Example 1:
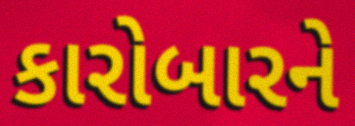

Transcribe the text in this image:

કારોબારને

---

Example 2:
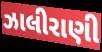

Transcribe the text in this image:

ઝાલીરાણી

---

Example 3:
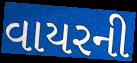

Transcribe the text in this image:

વાયરની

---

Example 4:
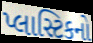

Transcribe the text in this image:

પ્લાસ્ટિકનો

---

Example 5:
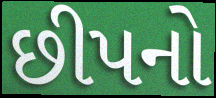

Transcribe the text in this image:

છીપનો